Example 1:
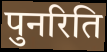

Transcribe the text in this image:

पुनरिति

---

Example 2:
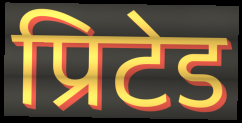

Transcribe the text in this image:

प्रिटेड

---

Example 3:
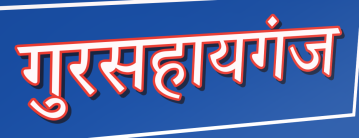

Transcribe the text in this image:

गुरसहायगंज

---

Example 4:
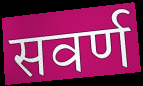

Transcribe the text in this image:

सवर्ण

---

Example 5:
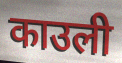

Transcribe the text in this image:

काउली